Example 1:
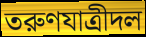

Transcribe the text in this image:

তরুণযাত্রীদল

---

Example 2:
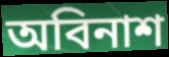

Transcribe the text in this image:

অবিনাশ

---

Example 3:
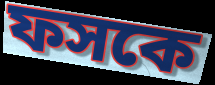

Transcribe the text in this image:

ফসকে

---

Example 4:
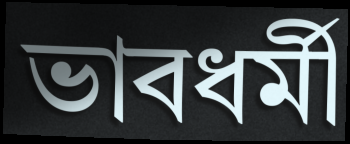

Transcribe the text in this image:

ভাবধর্মী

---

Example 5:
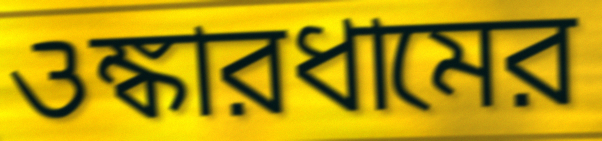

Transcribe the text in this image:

ওঙ্কারধামের